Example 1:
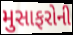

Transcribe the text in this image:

મુસાફરોની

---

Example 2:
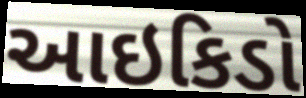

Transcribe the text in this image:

આઇકિડો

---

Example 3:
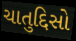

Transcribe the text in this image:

ચાતુદ્દિસો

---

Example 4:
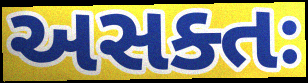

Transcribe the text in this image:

અસક્તઃ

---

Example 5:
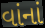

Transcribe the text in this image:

વાંનાં